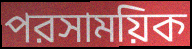
পরসাময়িক